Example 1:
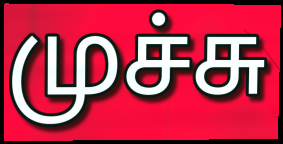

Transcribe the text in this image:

முச்சு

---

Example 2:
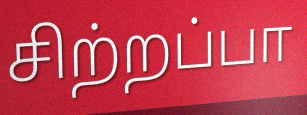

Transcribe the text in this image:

சிற்றப்பா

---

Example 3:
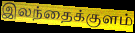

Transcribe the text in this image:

இலந்தைக்குளம்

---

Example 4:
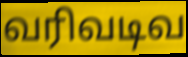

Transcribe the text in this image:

வரிவடிவ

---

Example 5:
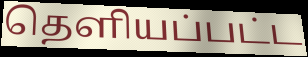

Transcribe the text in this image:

தெளியப்பட்ட